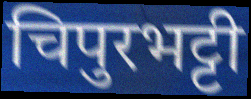
चिपुरभट्टी